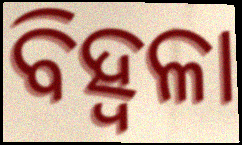
ବିହ୍ଵଳା